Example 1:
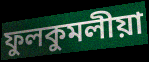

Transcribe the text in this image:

ফুলকুমলীয়া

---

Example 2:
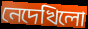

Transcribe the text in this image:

নেদেখিলো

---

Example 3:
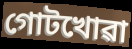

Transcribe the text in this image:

গোটখোৱা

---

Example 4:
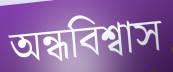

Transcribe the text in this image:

অন্ধবিশ্বাস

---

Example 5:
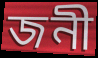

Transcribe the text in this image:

জনী